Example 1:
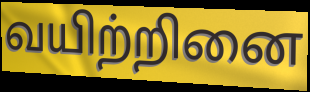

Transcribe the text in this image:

வயிற்றினை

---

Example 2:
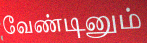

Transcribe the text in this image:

வேண்டினும்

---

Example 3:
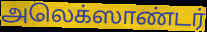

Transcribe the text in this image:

அலெக்ஸாண்டர்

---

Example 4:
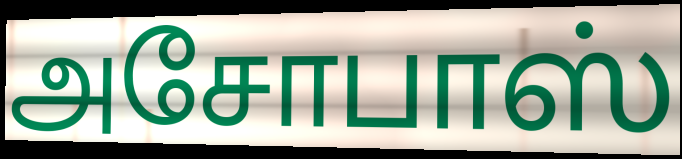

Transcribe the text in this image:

அசோபாஸ்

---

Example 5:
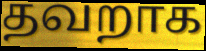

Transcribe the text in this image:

தவறாக